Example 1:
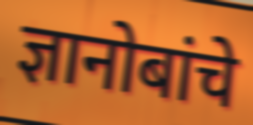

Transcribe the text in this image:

ज्ञानोबांचे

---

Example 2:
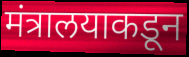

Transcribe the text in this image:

मंत्रालयाकडून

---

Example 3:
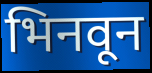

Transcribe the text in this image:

भिनवून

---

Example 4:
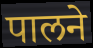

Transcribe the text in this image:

पालने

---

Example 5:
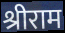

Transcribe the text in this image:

श्रीराम